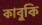
কাবুকি